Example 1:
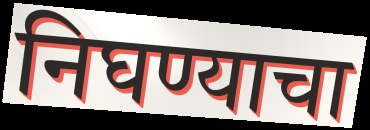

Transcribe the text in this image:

निघण्याचा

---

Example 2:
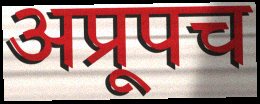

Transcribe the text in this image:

अप्रूपच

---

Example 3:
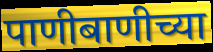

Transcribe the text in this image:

पाणीबाणीच्या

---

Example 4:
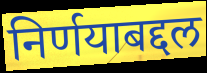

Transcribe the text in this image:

निर्णयाबद्दल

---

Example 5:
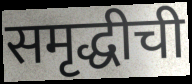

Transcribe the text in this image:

समृद्धीची